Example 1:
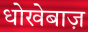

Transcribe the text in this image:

धोखेबाज़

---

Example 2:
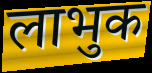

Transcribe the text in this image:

लाभुक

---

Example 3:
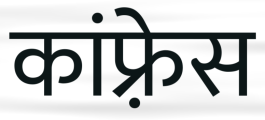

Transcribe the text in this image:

कांफ़्रेस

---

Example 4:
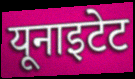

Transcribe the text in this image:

यूनाइटेट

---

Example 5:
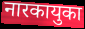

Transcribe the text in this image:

नारकायुका